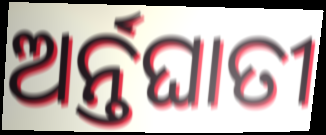
ଅର୍ନ୍ତଘାତୀ